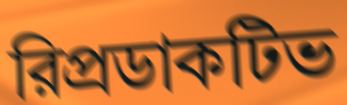
রিপ্রডাকটিভ